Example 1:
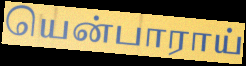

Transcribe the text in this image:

யென்பாராய்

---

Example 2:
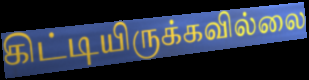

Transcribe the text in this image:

கிட்டியிருக்கவில்லை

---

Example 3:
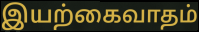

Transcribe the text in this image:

இயற்கைவாதம்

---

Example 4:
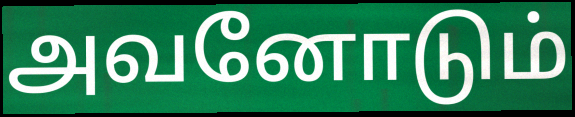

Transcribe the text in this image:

அவனோடும்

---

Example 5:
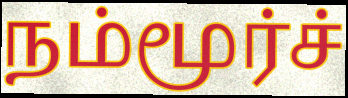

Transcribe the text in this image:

நம்மூர்ச்